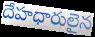
దేహధారులైన